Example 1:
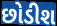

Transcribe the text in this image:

છોડીશ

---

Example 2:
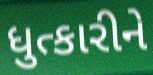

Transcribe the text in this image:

ધુત્કારીને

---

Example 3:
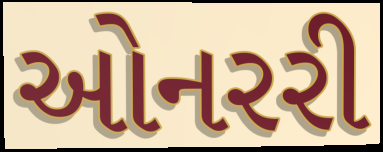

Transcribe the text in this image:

ઓનરરી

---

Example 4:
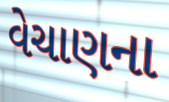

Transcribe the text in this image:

વેચાણના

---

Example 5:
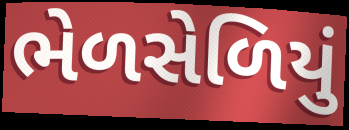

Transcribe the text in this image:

ભેળસેળિયું